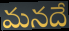
మనదే